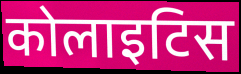
कोलाइटिस